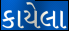
કાયેલા